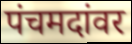
पंचमदांवर